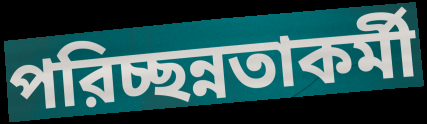
পরিচ্ছন্নতাকর্মী